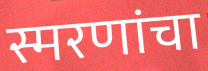
स्मरणांचा